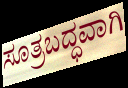
ಸೂತ್ರಬದ್ಧವಾಗಿ